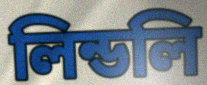
লিন্ডলি